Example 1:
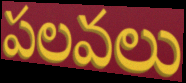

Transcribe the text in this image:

పలవలు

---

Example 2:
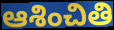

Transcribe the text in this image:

ఆశించితి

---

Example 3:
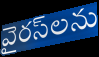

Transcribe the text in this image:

వైరస్‌లను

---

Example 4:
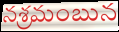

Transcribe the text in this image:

నశ్రమంబున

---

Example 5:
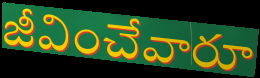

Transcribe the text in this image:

జీవించేవారూ